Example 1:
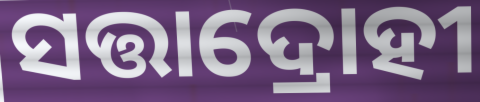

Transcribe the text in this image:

ସତ୍ତାଦ୍ରୋହୀ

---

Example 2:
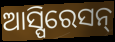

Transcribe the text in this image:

ଆସ୍ପିରେସନ୍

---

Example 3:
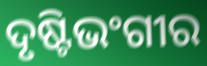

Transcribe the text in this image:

ଦୃଷ୍ଟିଭଂଗୀର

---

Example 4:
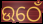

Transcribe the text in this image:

ଉଠେଁ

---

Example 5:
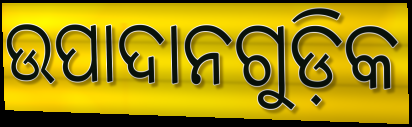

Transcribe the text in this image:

ଉପାଦାନଗୁଡ଼ିକ